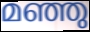
മഞ്ഞു